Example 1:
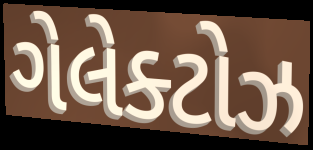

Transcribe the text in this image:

ગેલેક્ટોઝ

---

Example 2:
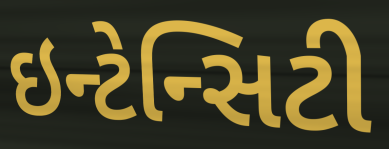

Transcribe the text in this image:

ઇન્ટેન્સિટી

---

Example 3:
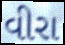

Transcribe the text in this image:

વીરા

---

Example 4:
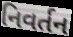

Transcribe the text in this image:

નિવર્તન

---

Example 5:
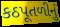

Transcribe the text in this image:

કઠપૂતળીનું